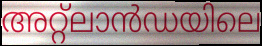
അറ്റ്ലാൻഡയിലെ